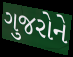
ગુજરોને